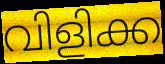
വിളിക്ക